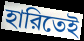
হারিতেই